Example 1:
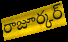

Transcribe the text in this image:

రాజూర్కర్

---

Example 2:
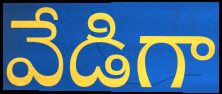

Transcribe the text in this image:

వేడిగా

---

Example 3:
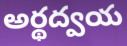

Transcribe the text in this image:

అర్థద్వయ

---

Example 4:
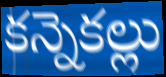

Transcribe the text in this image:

కన్నెకల్లు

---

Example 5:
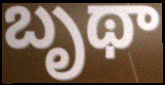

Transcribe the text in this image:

బృథా